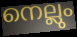
നെല്ലും